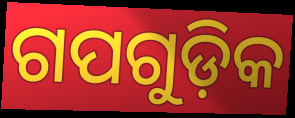
ଗପଗୁଡ଼ିକ